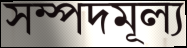
সম্পদমূল্য